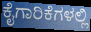
ಕೈಗಾರಿಕೆಗಳಲ್ಲಿ